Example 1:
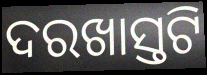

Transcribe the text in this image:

ଦରଖାସ୍ତଟି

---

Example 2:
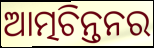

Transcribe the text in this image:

ଆତ୍ମଚିନ୍ତନର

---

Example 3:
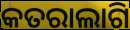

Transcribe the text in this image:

କତରାଲାଗି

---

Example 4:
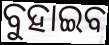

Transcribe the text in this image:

ବୁହାଇବ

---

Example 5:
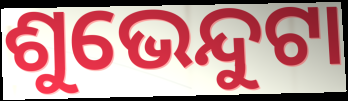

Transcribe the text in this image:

ଶୁଭେନ୍ଦୁଟା